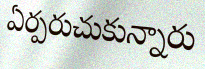
ఏర్పరుచుకున్నారు